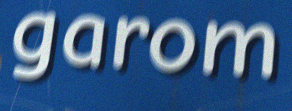
garom